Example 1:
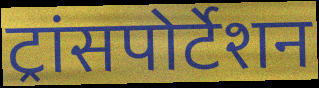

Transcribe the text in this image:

ट्रांसपोर्टेशन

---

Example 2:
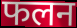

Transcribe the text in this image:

फलन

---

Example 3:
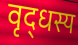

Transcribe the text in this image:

वृद्धस्य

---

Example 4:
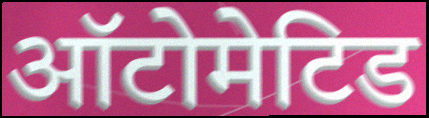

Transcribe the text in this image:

ऑटोमेटिड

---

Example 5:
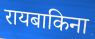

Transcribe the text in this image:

रायबाकिना